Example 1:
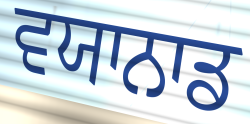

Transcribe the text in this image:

ਵਯਾਨਾਡ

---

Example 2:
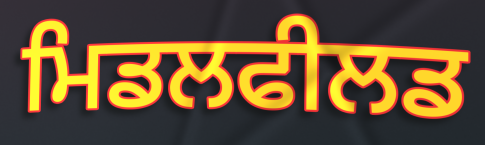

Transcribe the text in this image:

ਮਿਡਲਫੀਲਡ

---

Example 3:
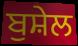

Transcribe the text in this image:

ਬੁਸ਼ੇਲ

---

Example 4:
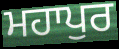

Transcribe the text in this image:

ਮਹਾਪੁਰ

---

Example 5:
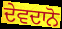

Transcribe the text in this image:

ਦੇਵਦਾਨੋ